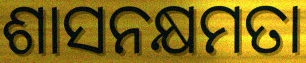
ଶାସନକ୍ଷମତା